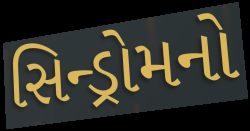
સિન્ડ્રોમનો